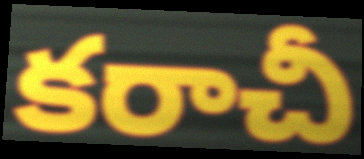
కరాచీ